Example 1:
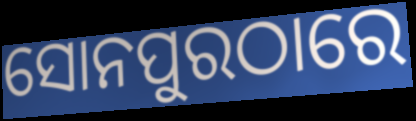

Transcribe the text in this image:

ସୋନପୁରଠାରେ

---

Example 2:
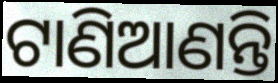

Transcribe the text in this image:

ଟାଣିଆଣନ୍ତି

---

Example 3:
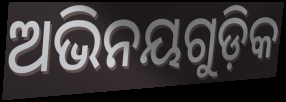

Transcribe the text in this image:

ଅଭିନୟଗୁଡ଼ିକ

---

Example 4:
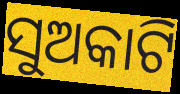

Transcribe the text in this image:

ସୁଅକାଟି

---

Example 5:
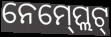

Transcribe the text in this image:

ନେମ୍‍ପ୍ଲେଟ୍